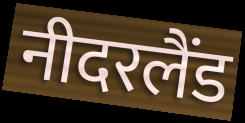
नीदरलैंड